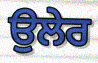
ਉਲੇਰ